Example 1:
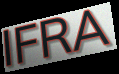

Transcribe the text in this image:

IFRA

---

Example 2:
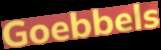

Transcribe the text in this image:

Goebbels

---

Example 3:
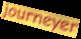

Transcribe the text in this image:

journeyer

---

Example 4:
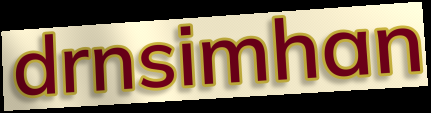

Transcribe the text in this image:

drnsimhan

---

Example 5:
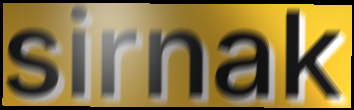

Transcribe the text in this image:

sirnak